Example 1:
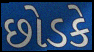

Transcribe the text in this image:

છોડકે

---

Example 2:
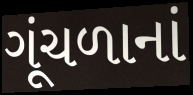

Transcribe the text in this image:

ગૂંચળાનાં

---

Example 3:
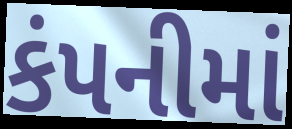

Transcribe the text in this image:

કંપનીમાં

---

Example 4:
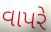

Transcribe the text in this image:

વાપરે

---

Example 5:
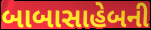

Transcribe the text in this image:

બાબાસાહેબની